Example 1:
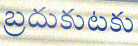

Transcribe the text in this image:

బ్రదుకుటకు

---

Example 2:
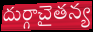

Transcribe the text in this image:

దుర్గాచైతన్య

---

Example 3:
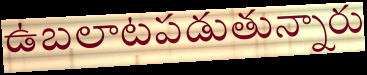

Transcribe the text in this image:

ఉబలాటపడుతున్నారు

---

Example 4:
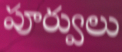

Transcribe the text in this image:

పూర్వులు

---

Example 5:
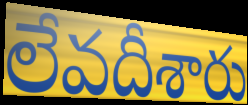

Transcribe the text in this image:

లేవదీశారు